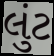
લુંટ